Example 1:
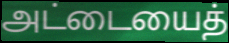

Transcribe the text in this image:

அட்டையைத்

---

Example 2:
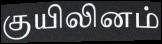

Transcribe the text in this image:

குயிலினம்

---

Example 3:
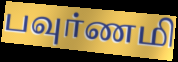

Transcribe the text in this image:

பவுர்ணமி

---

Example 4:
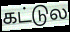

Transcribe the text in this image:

கட்டுல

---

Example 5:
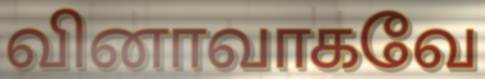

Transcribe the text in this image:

வினாவாகவே